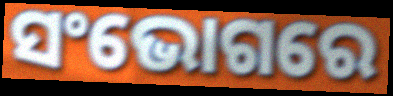
ସଂଭୋଗରେ